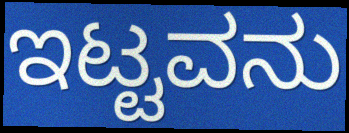
ಇಟ್ಟವನು